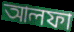
আলফা